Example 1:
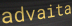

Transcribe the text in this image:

advaita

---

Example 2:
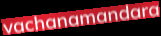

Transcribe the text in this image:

vachanamandara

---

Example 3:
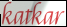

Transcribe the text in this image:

katkar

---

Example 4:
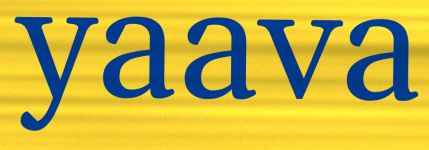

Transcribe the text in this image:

yaava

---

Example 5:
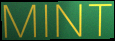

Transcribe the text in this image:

MINT